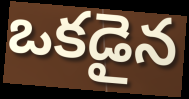
ఒకడైన